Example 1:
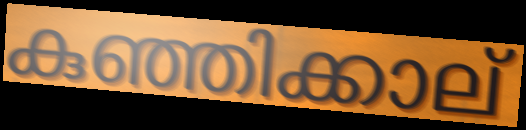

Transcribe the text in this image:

കുഞ്ഞിക്കാല്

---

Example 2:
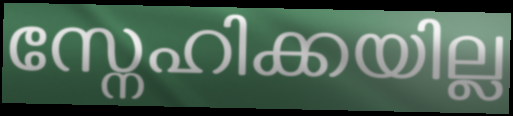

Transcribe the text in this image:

സ്നേഹിക്കയില്ല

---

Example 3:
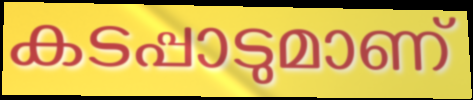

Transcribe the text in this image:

കടപ്പാടുമാണ്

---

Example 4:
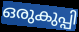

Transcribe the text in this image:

ഒരുകുപ്പി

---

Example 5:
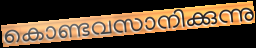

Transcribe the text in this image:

കൊണ്ടവസാനിക്കുന്നു